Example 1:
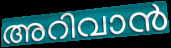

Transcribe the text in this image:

അറിവാൻ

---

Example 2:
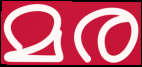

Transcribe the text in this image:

മര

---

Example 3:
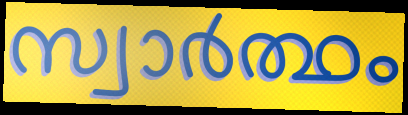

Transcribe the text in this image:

സ്വാർത്ഥം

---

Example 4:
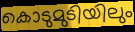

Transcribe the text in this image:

കൊടുമുടിയിലും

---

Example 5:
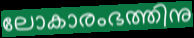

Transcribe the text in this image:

ലോകാരംഭത്തിനു